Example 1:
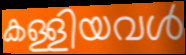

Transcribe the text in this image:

കള്ളിയവൾ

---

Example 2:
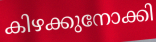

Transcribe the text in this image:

കിഴക്കുനോക്കി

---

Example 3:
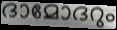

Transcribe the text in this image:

ദാമോദറും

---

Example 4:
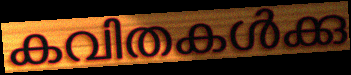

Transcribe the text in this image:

കവിതകൾക്കു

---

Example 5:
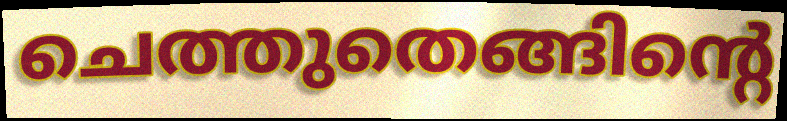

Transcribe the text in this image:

ചെത്തുതെങ്ങിന്റെ